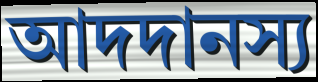
আদদানস্য